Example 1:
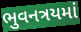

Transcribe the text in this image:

ભુવનત્રયમાં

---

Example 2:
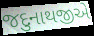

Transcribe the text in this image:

જદુનાથજીએ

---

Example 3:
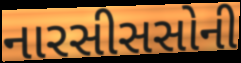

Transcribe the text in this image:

નારસીસસોની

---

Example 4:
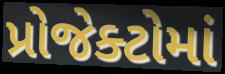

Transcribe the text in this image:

પ્રોજેક્ટોમાં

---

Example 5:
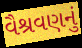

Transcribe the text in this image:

વૈશ્રવણનું